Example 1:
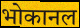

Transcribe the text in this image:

भोकानल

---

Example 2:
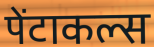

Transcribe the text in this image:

पेंटाकल्स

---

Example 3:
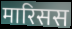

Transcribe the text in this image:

मारिसस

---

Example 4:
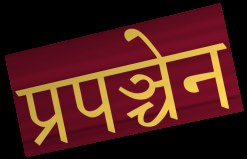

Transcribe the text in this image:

प्रपञ्चेन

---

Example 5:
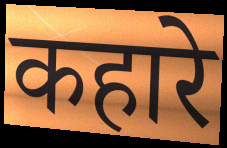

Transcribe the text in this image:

कहारे